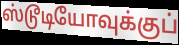
ஸ்டூடியோவுக்குப்